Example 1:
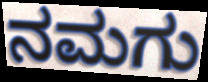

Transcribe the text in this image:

ನಮಗು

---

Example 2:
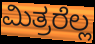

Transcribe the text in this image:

ಮಿತ್ರರೆಲ್ಲ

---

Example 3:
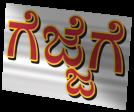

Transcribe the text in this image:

ಗೆಜ್ಜೆಗೆ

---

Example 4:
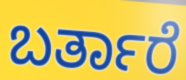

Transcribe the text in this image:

ಬರ್ತಾರೆ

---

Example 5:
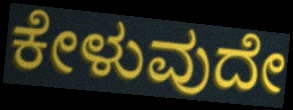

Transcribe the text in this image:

ಕೇಳುವುದೇ